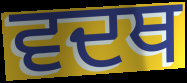
ਵਦਥ